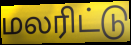
மலரிட்டு